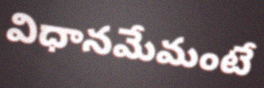
విధానమేమంటే